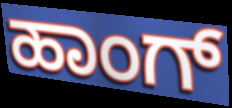
ಹಾಂಗ್